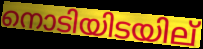
നൊടിയിടയില്